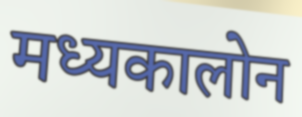
मध्यकालोन